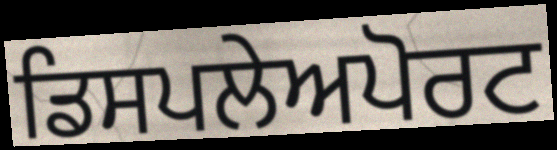
ਡਿਸਪਲੇਅਪੋਰਟ